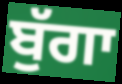
ਬੁੱਗਾ